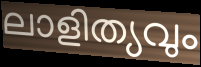
ലാളിത്യവും